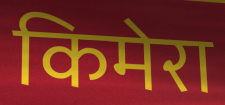
किमेरा